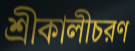
শ্রীকালীচরণ